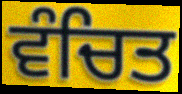
ਵੰਚਿਤ